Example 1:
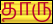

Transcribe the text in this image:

தாரு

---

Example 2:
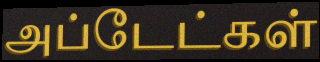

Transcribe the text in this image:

அப்டேட்கள்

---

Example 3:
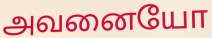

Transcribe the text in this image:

அவனையோ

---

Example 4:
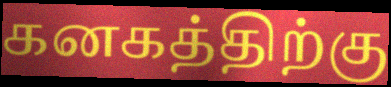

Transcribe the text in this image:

கனகத்திற்கு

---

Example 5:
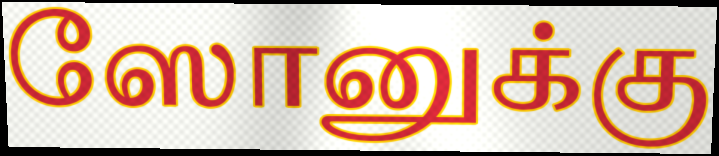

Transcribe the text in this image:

ஸோனுக்கு